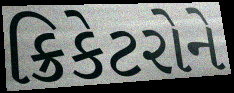
ક્રિકેટરોને